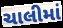
ચાલીમાં